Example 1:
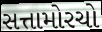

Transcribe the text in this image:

સત્તામોરચો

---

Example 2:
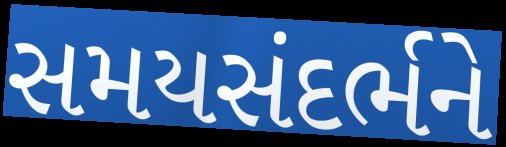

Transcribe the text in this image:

સમયસંદર્ભને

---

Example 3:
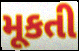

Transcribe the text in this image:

મૂકતી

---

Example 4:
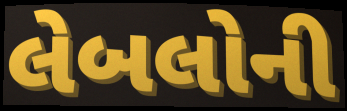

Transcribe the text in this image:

લેબલોની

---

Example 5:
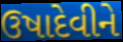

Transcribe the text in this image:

ઉષાદેવીને